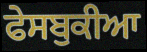
ਫੇਸਬੁਕੀਆ